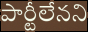
పార్టీలేనని